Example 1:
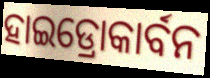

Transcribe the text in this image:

ହାଇଡ୍ରୋକାର୍ବନ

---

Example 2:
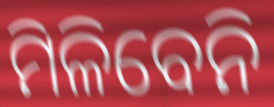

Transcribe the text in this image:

ମିଳିବେନି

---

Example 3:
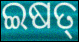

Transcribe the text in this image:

ଇଷତ୍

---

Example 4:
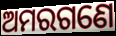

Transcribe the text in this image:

ଅମରଗଣେ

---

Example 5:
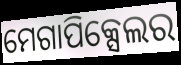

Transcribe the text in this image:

ମେଗାପିକ୍ସେଲର